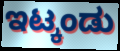
ಇಟ್ಕಂಡು